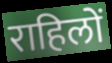
राहिलों